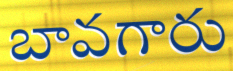
బావగారు